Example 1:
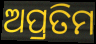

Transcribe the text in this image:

ଅପ୍ରତିମ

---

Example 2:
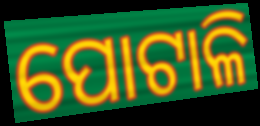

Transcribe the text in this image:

ପୋଟାଳି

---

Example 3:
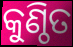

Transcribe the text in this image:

କୁଣ୍ଠିତ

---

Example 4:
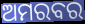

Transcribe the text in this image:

ଅମରବର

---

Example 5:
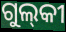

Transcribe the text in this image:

ଗୁଲ୍‌କୀ